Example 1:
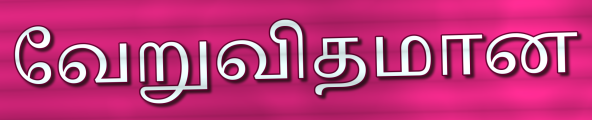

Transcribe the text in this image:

வேறுவிதமான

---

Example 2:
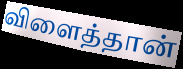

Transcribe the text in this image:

விளைத்தான்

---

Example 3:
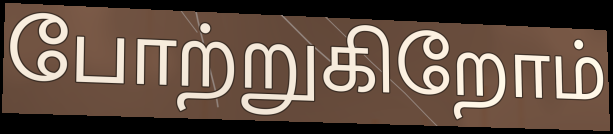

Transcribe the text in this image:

போற்றுகிறோம்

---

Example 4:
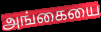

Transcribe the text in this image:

அங்கையை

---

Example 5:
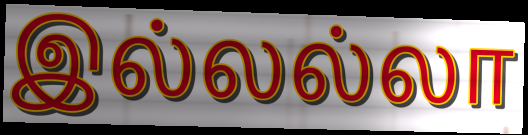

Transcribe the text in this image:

இல்லல்லா